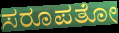
ಸರೂಪತೋ